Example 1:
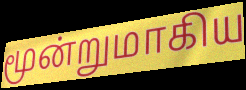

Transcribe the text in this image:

மூன்றுமாகிய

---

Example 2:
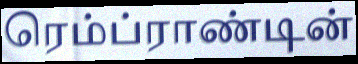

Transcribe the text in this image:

ரெம்ப்ராண்டின்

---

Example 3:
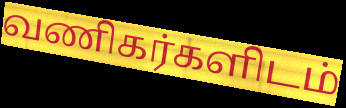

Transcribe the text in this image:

வணிகர்களிடம்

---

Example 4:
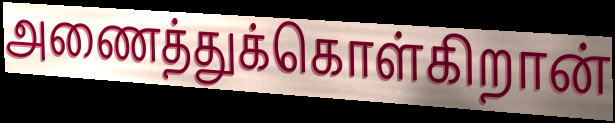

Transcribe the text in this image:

அணைத்துக்கொள்கிறான்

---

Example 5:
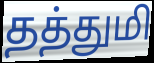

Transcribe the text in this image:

தத்துமி